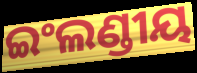
ଇଂଲଣ୍ଡୀୟ